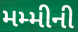
મમ્મીની